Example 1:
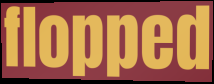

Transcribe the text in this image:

flopped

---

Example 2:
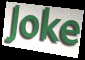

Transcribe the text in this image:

Joke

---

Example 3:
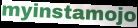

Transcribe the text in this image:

myinstamojo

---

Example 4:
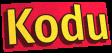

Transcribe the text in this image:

Kodu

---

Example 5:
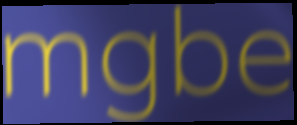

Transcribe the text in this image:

mgbe